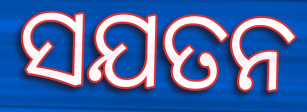
ସଯତନ